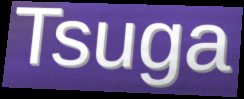
Tsuga